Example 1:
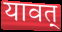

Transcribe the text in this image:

यावत्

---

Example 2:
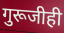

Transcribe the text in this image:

गुरूजीही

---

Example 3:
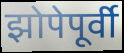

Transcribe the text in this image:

झोपेपूर्वी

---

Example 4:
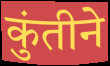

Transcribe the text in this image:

कुंतीने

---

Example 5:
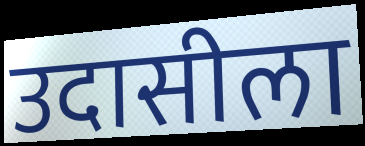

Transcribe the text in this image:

उदासीला